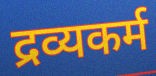
द्रव्यकर्म